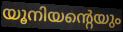
യൂനിയന്റെയും